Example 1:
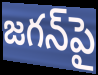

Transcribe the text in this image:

జగన్‌పై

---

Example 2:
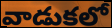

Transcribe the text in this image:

వాడుకలో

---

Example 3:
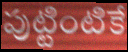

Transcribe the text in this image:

పుట్టింటికే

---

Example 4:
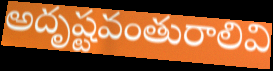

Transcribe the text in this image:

అదృష్టవంతురాలివి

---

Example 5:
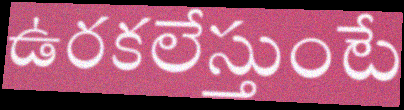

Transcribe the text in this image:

ఉరకలేస్తుంటే